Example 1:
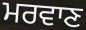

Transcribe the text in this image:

ਮਰਵਾਣ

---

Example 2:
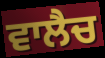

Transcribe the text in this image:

ਵਾਲੈਚ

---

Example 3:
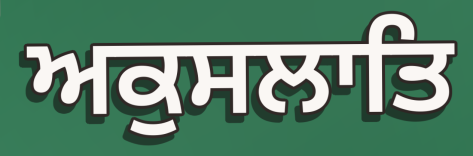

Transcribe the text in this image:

ਅਕੁਸਲਾਤਿ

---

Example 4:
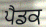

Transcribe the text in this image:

ਪੈਡਕ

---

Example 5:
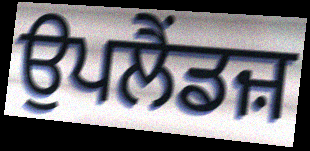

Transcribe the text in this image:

ਉਪਲੈਂਡਜ਼